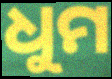
ଧୁମ